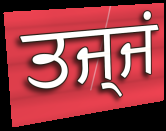
ਤਜ੍ਜਂ